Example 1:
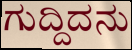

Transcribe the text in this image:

ಗುದ್ದಿದನು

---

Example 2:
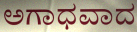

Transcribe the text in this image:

ಅಗಾಧವಾದ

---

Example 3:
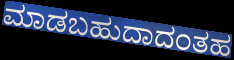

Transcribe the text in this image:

ಮಾಡಬಹುದಾದಂತಹ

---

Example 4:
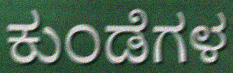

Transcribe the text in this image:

ಕುಂಡೆಗಳ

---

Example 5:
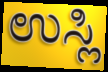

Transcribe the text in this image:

ಉಸ್ಲಿ